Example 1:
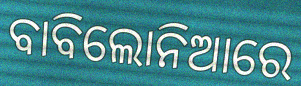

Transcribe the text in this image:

ବାବିଲୋନିଆରେ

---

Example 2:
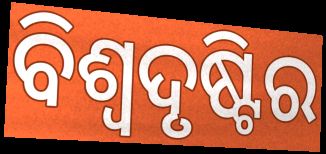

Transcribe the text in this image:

ବିଶ୍ୱଦୃଷ୍ଟିର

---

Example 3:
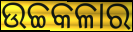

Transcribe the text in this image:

ଉଚ୍ଚକଳାର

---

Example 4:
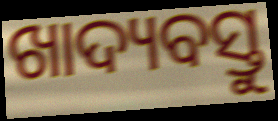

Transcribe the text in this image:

ଖାଦ୍ୟବସ୍ତୁ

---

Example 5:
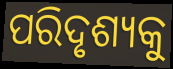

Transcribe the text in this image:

ପରିଦୃଶ୍ୟକୁ